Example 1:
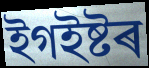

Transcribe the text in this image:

ইগইষ্টৰ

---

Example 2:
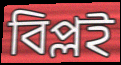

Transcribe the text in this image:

বিপ্লই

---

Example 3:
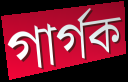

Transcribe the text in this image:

গাৰ্গক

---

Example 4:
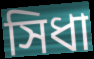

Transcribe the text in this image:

সিধা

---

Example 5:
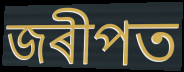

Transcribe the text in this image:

জৰীপত